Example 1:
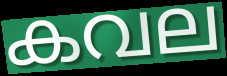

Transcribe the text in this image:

കവല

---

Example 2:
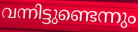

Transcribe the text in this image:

വന്നിട്ടുണ്ടെന്നും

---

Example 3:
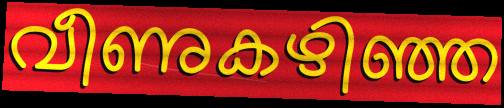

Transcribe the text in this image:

വീണുകഴിഞ്ഞ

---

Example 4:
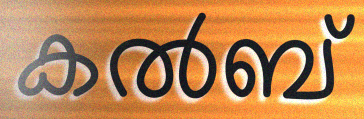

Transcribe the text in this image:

കൽബ്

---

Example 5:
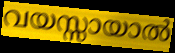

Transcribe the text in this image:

വയസ്സായാൽ